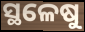
ସ୍ଥଳେଷୁ